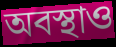
অবস্থাও